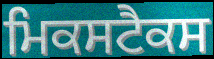
ਮਿਕਸਟੈਕਸ